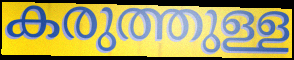
കരുത്തുള്ള